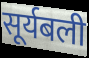
सूर्यबली